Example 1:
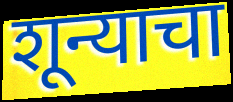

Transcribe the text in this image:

शून्याचा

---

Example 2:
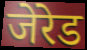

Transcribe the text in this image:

जेरेड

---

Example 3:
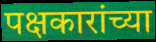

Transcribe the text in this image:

पक्षकारांच्या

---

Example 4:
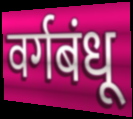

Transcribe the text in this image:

वर्गबंधू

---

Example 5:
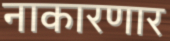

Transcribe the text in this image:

नाकारणार